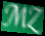
MZ